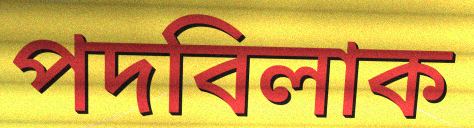
পদবিলাক